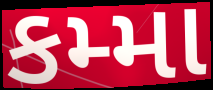
કમ્મા